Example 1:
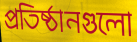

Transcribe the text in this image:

প্রতিষ্ঠানগুলো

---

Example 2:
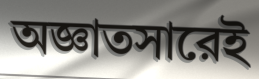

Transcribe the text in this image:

অজ্ঞাতসারেই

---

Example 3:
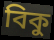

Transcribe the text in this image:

বিকু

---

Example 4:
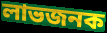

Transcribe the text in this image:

লাভজনক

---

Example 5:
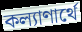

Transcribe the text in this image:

কল্যাণার্থে